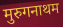
मुरुगनाथम